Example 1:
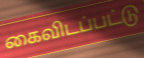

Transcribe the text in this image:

கைவிடப்பட்டு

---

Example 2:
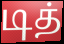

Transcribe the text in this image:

டித்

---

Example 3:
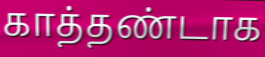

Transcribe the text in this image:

காத்தண்டாக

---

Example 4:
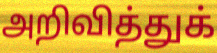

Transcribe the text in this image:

அறிவித்துக்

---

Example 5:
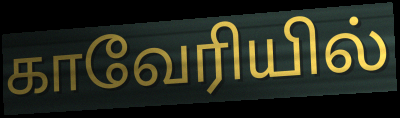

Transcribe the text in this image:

காவேரியில்